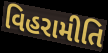
વિહરામીતિ